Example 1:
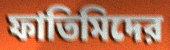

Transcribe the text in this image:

ফাতিমিদের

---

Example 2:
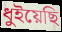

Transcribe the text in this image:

ধুইয়েছি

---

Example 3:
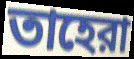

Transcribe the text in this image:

তাহেরা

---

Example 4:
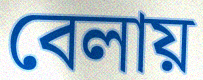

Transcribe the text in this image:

বেলায়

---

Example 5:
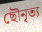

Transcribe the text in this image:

ছৌনৃত্য